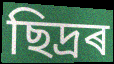
ছিদ্ৰৰ